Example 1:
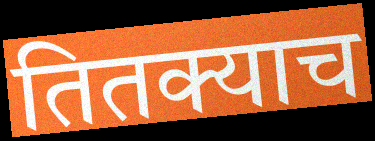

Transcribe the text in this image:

तितक्‍याच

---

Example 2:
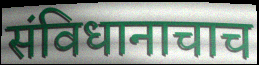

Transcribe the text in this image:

संविधानाचाच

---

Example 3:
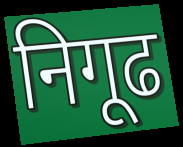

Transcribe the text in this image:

निगूढ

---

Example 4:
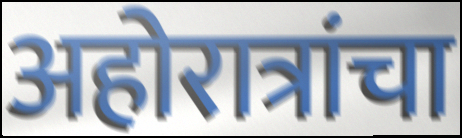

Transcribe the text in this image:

अहोरात्रांचा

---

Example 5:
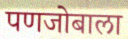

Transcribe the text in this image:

पणजोबाला